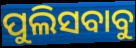
ପୁଲିସବାବୁ